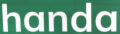
handa